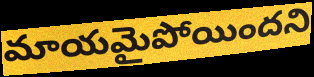
మాయమైపోయిందని